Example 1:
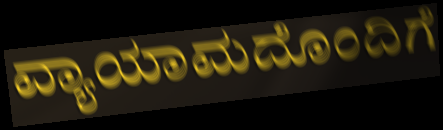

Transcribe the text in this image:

ವ್ಯಾಯಾಮದೊಂದಿಗೆ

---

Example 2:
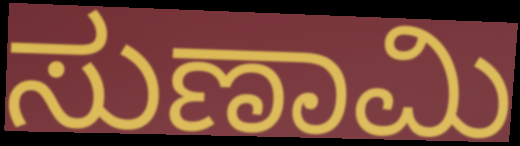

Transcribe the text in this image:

ಸುಣಾಮಿ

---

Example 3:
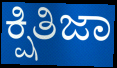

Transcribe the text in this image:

ಕ್ಷಿತಿಜಾ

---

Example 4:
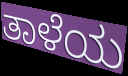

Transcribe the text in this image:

ತಾಳೆಯ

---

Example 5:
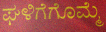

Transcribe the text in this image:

ಘಳಿಗೆಗೊಮ್ಮೆ